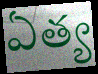
ఏత్య